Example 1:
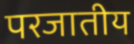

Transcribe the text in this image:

परजातीय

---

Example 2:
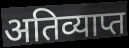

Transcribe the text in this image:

अतिव्याप्त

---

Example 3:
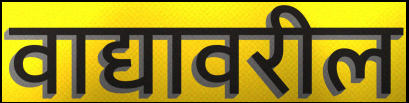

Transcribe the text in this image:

वाद्यावरील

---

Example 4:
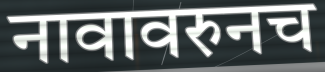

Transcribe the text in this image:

नावावरुनच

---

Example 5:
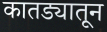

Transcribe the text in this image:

कातड्यातून